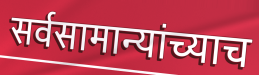
सर्वसामान्यांच्याच